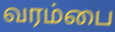
வரம்பை